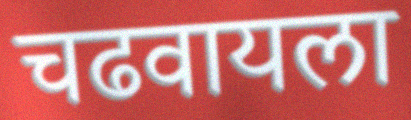
चढवायला